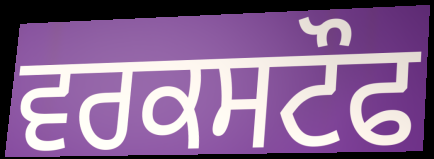
ਵਰਕਸਟੌਫ